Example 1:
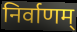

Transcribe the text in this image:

निर्वाणम्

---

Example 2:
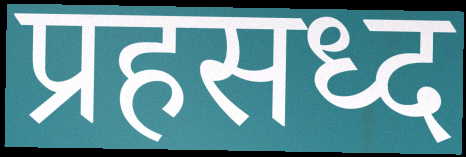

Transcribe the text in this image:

प्रहसध्द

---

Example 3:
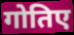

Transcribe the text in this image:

गोतिए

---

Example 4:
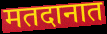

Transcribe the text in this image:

मतदानात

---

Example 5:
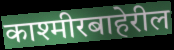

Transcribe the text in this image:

काश्मीरबाहेरील